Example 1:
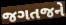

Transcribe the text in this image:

જગતજને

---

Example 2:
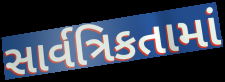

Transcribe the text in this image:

સાર્વત્રિકતામાં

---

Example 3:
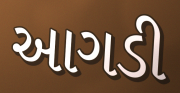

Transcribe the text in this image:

આગડી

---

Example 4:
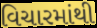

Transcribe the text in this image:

વિચારમાંથી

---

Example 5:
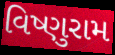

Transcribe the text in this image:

વિષ્ણુરામ